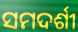
ସମଦର୍ଶୀ